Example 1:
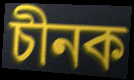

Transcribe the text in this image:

চীনক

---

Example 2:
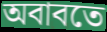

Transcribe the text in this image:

অবাবতে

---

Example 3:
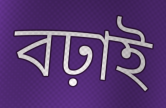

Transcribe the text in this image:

বঢ়াই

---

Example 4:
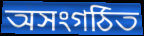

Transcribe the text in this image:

অসংগঠিত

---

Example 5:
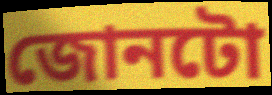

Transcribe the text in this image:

জোনটো